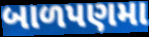
બાળપણમા